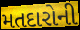
મતદારોની